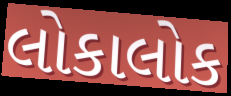
લોકાલોક